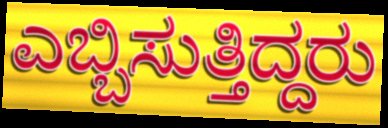
ಎಬ್ಬಿಸುತ್ತಿದ್ದರು